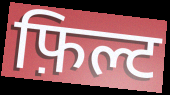
फ़िल्ट